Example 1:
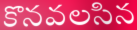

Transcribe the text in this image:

కొనవలసిన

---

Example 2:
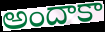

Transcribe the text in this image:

అందాకా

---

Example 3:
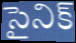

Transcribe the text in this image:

సైనిక్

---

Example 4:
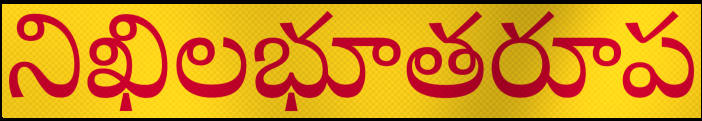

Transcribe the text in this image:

నిఖిలభూతరూప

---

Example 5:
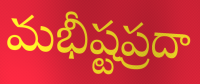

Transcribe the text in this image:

మభీష్టప్రదా